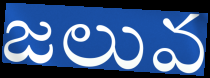
జలువ